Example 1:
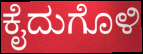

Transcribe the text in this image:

ಕೈದುಗೊಳಿ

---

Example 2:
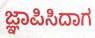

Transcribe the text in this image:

ಜ್ಞಾಪಿಸಿದಾಗ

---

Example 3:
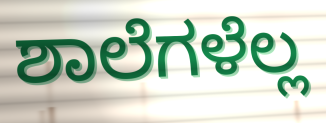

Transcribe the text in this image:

ಶಾಲೆಗಳೆಲ್ಲ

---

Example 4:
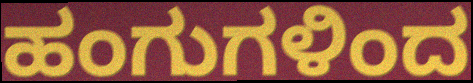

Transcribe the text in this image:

ಹಂಗುಗಳಿಂದ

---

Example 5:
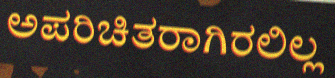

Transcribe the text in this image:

ಅಪರಿಚಿತರಾಗಿರಲಿಲ್ಲ